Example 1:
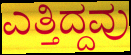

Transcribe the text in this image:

ಎತ್ತಿದ್ದವು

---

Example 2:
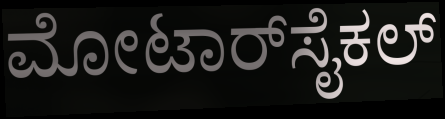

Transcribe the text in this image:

ಮೋಟಾರ್‌ಸೈಕಲ್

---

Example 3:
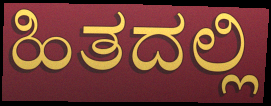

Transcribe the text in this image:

ಹಿತದಲ್ಲಿ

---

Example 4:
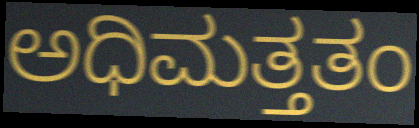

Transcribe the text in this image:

ಅಧಿಮತ್ತತಂ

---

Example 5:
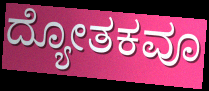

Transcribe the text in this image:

ದ್ಯೋತಕವೂ